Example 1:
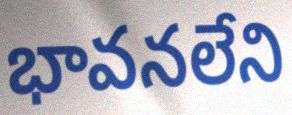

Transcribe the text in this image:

భావనలేని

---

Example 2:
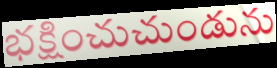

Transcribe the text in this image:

భక్షించుచుండును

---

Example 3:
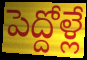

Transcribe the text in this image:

పెద్దోళ్లే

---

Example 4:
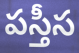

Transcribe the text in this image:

పస్తీస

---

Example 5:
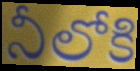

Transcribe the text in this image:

నీలోకి